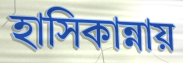
হাসিকান্নায়